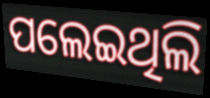
ପଲେଇଥିଲି